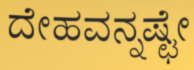
ದೇಹವನ್ನಷ್ಟೇ